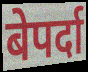
बेपर्दा